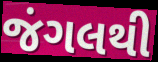
જંગલથી